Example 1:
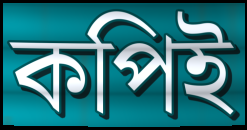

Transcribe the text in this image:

কপিই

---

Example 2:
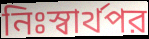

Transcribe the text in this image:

নিঃস্বার্থপর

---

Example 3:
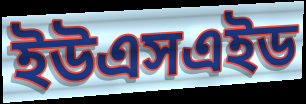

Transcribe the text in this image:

ইউএসএইড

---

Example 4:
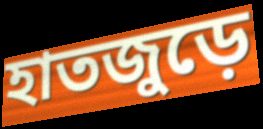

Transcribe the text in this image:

হাতজুড়ে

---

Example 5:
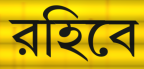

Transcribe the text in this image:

রহিবে